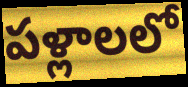
పళ్లాలలో